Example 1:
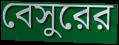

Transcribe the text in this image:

বেসুরের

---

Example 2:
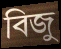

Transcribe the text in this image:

বিজু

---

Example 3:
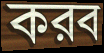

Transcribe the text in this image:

করব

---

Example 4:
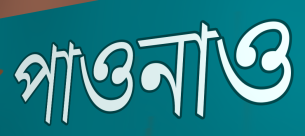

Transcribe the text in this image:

পাওনাও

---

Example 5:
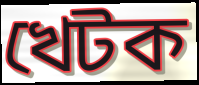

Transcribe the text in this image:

খেটক